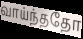
வாய்ந்ததோ